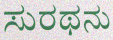
ಸುರಥನು